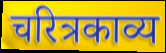
चरित्रकाव्य